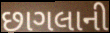
છાગલાની